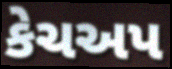
કેચઅપ